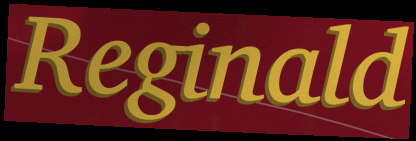
Reginald